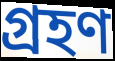
গ্ৰহণ